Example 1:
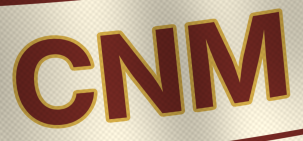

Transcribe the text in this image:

CNM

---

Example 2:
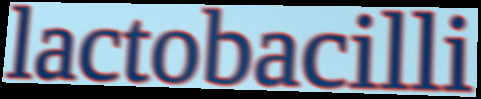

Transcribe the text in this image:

lactobacilli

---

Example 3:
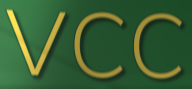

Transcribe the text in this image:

vcc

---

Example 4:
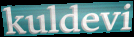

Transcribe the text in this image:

kuldevi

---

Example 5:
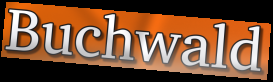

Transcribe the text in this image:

Buchwald